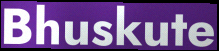
Bhuskute